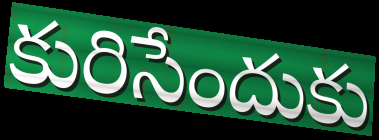
కురిసేందుకు